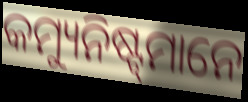
କମ୍ୟୁନିଷ୍ଟ୍‌ମାନେ